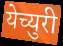
येच्युरी